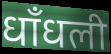
धॉँधली